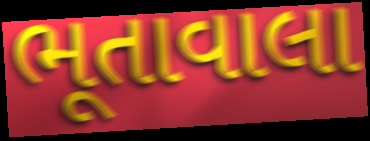
ભૂતાવાલા